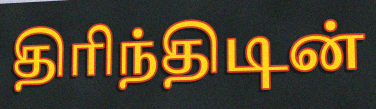
திரிந்திடின்